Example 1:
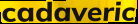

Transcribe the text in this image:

cadaveric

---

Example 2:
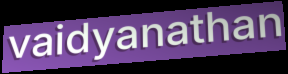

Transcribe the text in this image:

vaidyanathan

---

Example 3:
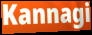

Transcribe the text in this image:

Kannagi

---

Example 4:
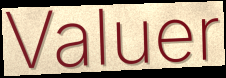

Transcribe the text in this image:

Valuer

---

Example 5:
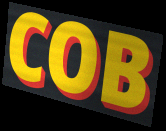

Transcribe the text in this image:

COB